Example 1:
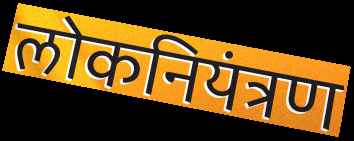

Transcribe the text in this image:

लोकनियंत्रण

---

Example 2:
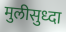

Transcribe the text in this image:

मुलीसुध्दा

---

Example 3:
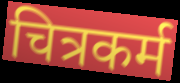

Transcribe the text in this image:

चित्रकर्म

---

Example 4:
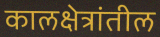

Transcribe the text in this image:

कालक्षेत्रांतील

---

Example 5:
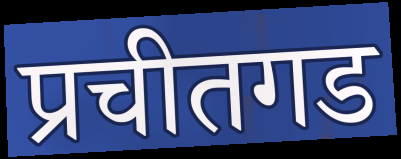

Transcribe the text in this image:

प्रचीतगड